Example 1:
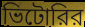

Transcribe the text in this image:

ভিটোরির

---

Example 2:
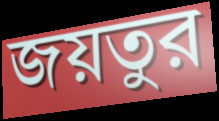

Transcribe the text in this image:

জয়তুর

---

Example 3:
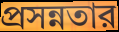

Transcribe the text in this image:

প্রসন্নতার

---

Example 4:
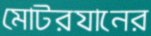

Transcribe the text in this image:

মোটরযানের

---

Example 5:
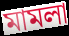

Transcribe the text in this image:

মামলা